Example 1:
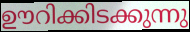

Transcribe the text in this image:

ഊറിക്കിടക്കുന്നു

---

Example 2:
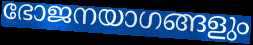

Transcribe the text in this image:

ഭോജനയാഗങ്ങളും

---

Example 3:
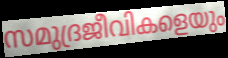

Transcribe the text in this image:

സമുദ്രജീവികളെയും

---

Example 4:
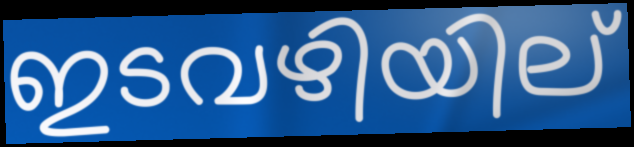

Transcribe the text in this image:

ഇടവഴിയില്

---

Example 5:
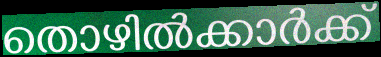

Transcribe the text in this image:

തൊഴിൽക്കാർക്ക്